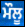
ਮੌਲੂ